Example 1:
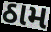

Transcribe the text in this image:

ઠામ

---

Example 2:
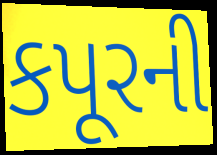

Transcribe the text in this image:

કપૂરની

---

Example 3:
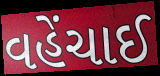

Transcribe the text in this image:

વહેંચાઈ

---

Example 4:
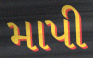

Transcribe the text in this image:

માપી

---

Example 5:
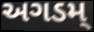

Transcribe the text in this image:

અગડમ્